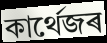
কাৰ্থেজৰ